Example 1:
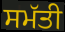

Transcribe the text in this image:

ਸਮੱਤੀ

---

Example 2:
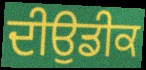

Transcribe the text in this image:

ਦੀਉਡੀਕ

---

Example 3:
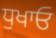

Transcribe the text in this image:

ਧੁਖਾਓ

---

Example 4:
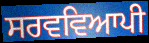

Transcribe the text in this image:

ਸਰਵਵਿਆਪੀ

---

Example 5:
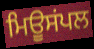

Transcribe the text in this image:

ਮਿਊਸਂਪਲ